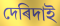
দেৰিদাই